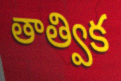
తాత్విక